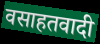
वसाहतवादी